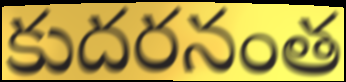
కుదరనంత